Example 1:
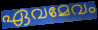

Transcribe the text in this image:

ഏവമേവം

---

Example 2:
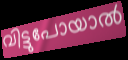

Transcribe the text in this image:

വിട്ടുപോയാൽ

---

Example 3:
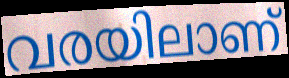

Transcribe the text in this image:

വരയിലാണ്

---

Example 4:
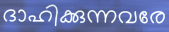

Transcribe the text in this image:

ദാഹിക്കുന്നവരേ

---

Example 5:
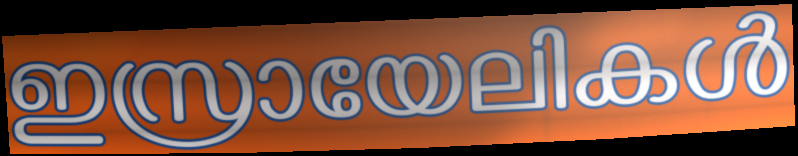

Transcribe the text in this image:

ഇസ്രായേലികൾ